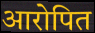
आरोपित